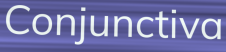
Conjunctiva